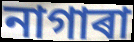
নাগাৰা